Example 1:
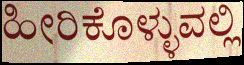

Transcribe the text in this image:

ಹೀರಿಕೊಳ್ಳುವಲ್ಲಿ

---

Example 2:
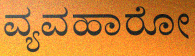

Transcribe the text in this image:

ವ್ಯವಹಾರೋ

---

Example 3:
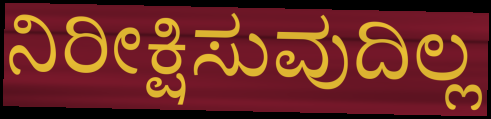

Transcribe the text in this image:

ನಿರೀಕ್ಷಿಸುವುದಿಲ್ಲ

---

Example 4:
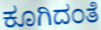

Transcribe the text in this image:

ಕೂಗಿದಂತೆ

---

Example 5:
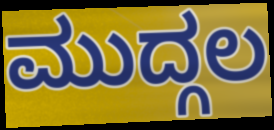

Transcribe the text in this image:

ಮುದ್ಗಲ